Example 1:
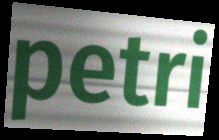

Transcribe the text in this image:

petri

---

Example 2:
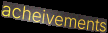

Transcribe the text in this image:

acheivements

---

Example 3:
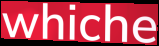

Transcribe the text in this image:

whiche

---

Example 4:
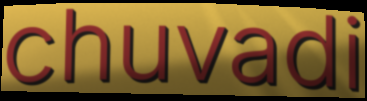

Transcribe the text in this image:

chuvadi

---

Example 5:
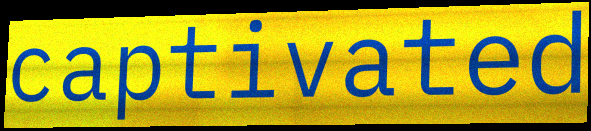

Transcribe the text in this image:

captivated